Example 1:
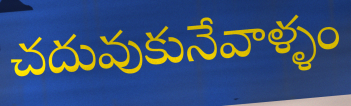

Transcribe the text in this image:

చదువుకునేవాళ్ళం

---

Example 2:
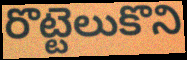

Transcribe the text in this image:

రొట్టెలుకొని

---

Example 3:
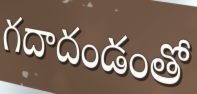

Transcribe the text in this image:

గదాదండంతో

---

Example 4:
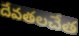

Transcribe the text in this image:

దేవతలచేత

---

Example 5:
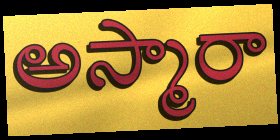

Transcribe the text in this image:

అస్మారా